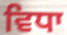
ਵਿਧਾ